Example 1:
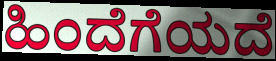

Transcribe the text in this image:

ಹಿಂದೆಗೆಯದೆ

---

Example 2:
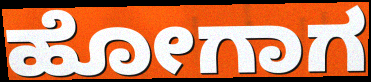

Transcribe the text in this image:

ಹೋಗಾಗ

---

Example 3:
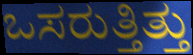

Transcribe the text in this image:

ಒಸರುತ್ತಿತ್ತು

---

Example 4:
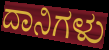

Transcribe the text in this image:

ದಾನಿಗಳು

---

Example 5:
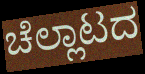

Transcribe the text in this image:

ಚೆಲ್ಲಾಟದ